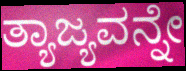
ತ್ಯಾಜ್ಯವನ್ನೇ